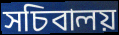
সচিবালয়